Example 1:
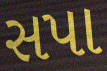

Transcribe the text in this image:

સપા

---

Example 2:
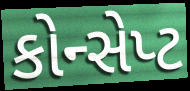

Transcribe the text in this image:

કોન્સેપ્ટ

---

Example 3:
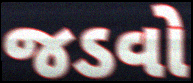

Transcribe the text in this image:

જડવો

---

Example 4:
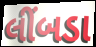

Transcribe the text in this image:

લીંબડા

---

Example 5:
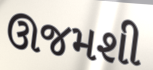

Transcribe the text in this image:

ઊજમશી